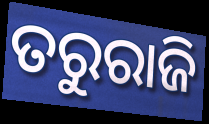
ତରୁରାଜି